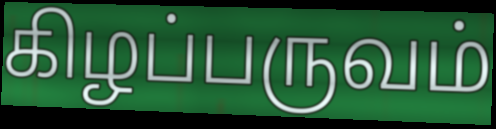
கிழப்பருவம்